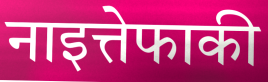
नाइत्तेफाकी